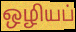
ஒழியப்